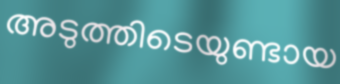
അടുത്തിടെയുണ്ടായ